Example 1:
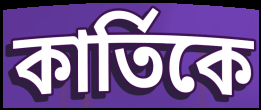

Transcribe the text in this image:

কাৰ্তিকে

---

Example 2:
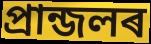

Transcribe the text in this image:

প্ৰান্জলৰ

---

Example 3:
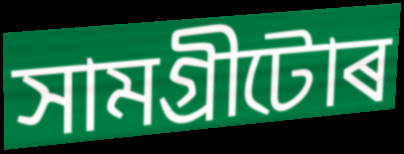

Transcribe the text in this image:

সামগ্ৰীটোৰ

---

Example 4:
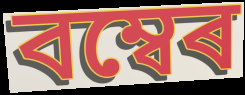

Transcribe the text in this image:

বম্বেৰ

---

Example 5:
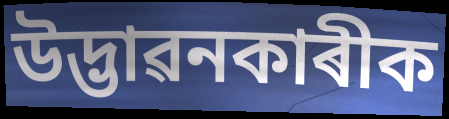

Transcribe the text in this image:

উদ্ভাৱনকাৰীক